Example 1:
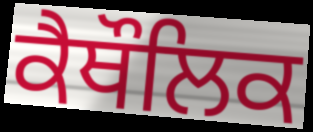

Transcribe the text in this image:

ਕੈਥੌਲਿਕ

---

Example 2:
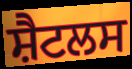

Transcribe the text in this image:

ਸ਼ੈਟਲਸ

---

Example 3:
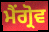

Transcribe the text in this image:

ਮੈਂਗ੍ਰੋਵ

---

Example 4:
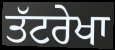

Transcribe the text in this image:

ਤੱਟਰੇਖਾ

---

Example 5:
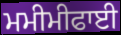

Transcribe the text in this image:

ਮਮੀਮੀਫਾਈ